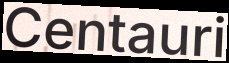
Centauri